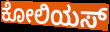
ಕೋಲಿಯಸ್